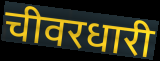
चीवरधारी